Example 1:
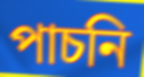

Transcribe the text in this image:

পাচনি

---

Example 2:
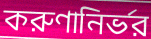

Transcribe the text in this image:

করুণানির্ভর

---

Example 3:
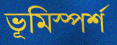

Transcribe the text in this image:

ভূমিস্পর্শ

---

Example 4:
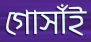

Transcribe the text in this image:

গোসাঁই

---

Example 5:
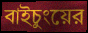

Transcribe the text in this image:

বাইচুংয়ের